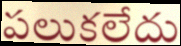
పలుకలేదు